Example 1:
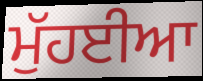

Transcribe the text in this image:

ਮੁੱਹਈਆ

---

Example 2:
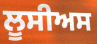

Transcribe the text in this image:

ਲੂਸੀਅਸ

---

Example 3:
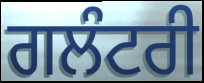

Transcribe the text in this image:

ਗਲੰਟਰੀ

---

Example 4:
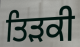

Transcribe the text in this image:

ਤਿੜਕੀ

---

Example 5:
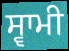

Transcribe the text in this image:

ਸ੍ਵਾਮੀ